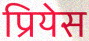
प्रियेस